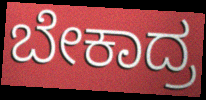
ಬೇಕಾದ್ರ